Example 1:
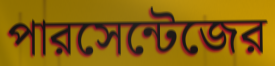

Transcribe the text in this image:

পারসেন্টেজের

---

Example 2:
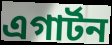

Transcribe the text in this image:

এগার্টন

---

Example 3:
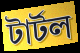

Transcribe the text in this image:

টার্টল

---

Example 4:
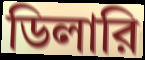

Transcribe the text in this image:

ডিলারি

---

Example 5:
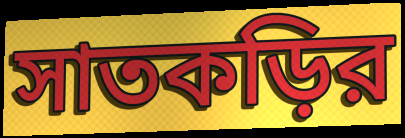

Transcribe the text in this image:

সাতকড়ির